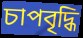
চাপবৃদ্ধি